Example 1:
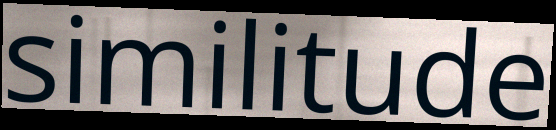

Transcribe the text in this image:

similitude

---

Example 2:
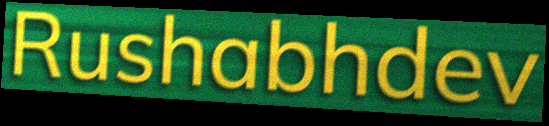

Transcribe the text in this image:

Rushabhdev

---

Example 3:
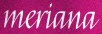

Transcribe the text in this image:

meriana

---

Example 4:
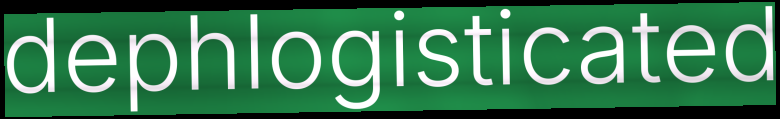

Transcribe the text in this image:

dephlogisticated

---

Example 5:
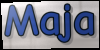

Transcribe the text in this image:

Maja